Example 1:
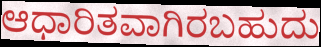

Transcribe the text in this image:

ಆಧಾರಿತವಾಗಿರಬಹುದು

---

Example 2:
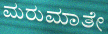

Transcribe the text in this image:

ಮರುಮಾತೇ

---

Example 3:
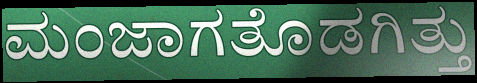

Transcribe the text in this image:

ಮಂಜಾಗತೊಡಗಿತ್ತು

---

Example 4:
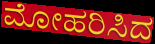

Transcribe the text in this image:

ಮೋಹರಿಸಿದ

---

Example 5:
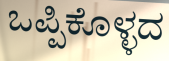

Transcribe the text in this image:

ಒಪ್ಪಿಕೊಳ್ಳದ